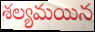
శల్యమయిన